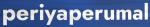
periyaperumal